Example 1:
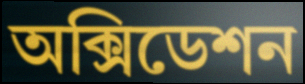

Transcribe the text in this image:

অক্সিডেশন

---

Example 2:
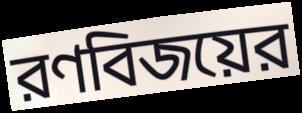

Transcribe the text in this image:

রণবিজয়ের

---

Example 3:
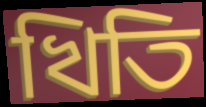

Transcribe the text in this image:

খিতি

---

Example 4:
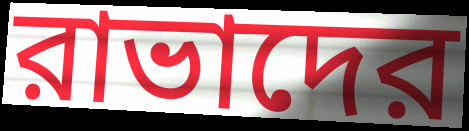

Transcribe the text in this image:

রাভাদের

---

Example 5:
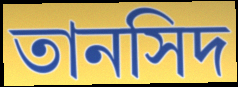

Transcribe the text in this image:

তানসিদ